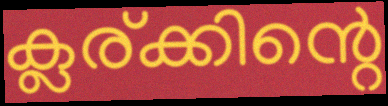
ക്ലര്ക്കിന്റെ